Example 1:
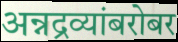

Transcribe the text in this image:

अन्नद्रव्यांबरोबर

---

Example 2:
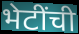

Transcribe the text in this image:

भेटींची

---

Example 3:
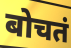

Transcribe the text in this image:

बोचतं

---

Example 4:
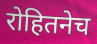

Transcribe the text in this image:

रोहितनेच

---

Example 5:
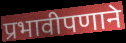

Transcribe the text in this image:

प्रभावीपणाने